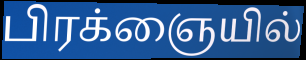
பிரக்ஞையில்